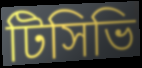
টিসিভি